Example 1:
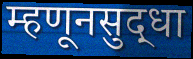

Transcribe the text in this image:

म्हणूनसुद्धा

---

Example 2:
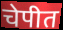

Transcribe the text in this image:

चेपीत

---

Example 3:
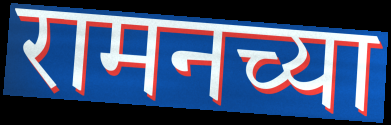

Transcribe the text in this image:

रामनच्या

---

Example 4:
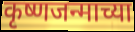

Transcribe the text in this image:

कृष्णजन्माच्या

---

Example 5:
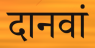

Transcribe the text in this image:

दानवां